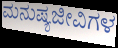
ಮನುಷ್ಯಜೀವಿಗಳ